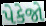
પેકેજો